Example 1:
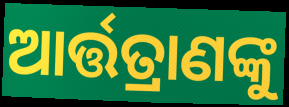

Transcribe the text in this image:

ଆର୍ତ୍ତତ୍ରାଣଙ୍କୁ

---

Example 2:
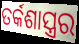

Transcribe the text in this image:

ତର୍କଶାସ୍ତ୍ରର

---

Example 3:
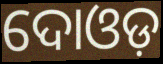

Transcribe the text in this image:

ଦୋଓଡ଼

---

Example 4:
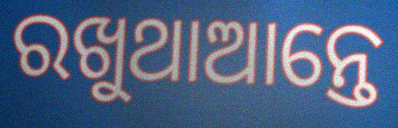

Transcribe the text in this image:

ରଖୁଥାଆନ୍ତେ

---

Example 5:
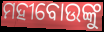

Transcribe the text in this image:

ମହୀବୋଉଙ୍କୁ